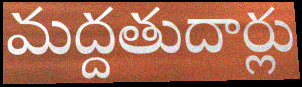
మద్దతుదార్లు